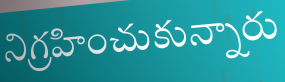
నిగ్రహించుకున్నారు